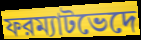
ফরম্যাটভেদে